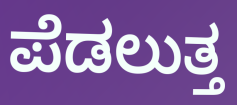
ಪೆಡಲುತ್ತ